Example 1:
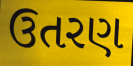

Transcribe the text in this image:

ઉતરણ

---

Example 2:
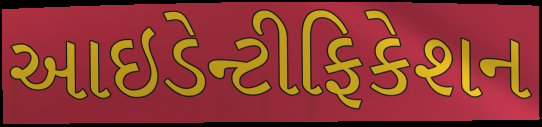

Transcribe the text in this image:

આઇડેન્ટીફિકેશન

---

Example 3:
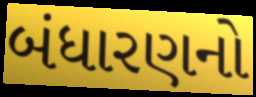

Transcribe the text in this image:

બંધારણનો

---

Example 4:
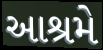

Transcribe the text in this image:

આશ્રમે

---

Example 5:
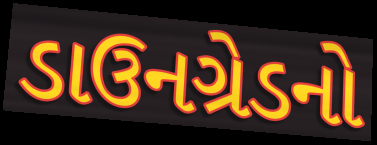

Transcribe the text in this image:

ડાઉનગ્રેડનો